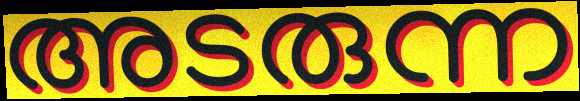
അടരുന്ന